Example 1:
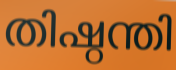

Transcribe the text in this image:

തിഷ്ഠന്തി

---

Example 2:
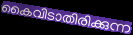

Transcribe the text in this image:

കൈവിടാതിരിക്കുന്ന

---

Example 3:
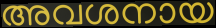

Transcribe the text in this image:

അവശനായ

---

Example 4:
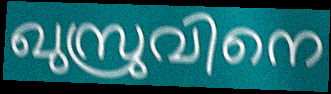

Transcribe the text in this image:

ഖുസ്രുവിനെ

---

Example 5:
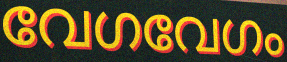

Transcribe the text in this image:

വേഗവേഗം